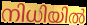
നിധിയിൽ